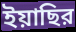
ইয়াছির